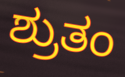
ಶ್ರುತಂ